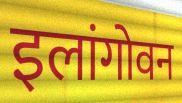
इलांगोवन